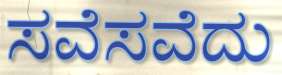
ಸವೆಸವೆದು